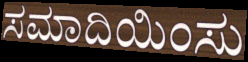
ಸಮಾದಿಯಿಂಸು